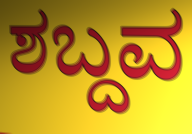
ಶಬ್ದವ